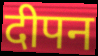
दीपन